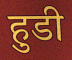
हुडी